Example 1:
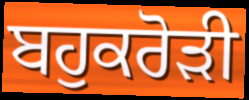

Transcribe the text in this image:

ਬਹੁਕਰੋਡ਼ੀ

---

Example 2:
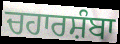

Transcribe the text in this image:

ਚਹਾਰਸ਼ੰਬਾ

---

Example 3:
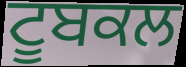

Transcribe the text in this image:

ਟੂਬਕਲ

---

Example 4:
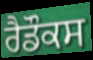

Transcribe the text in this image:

ਰੈਡੌਕਸ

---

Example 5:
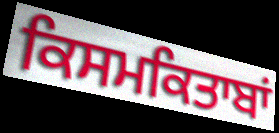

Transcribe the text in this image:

ਕਿਸਮਕਿਤਾਬਾਂ